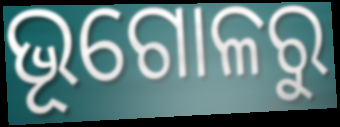
ଭୂଗୋଳରୁ